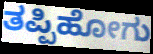
ತಪ್ಪಿಹೋಗು